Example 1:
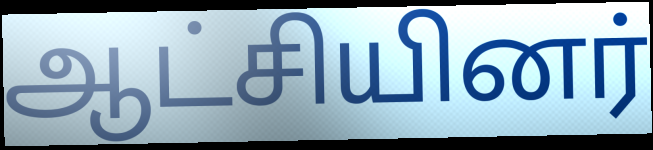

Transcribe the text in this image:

ஆட்சியினர்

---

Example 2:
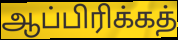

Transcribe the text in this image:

ஆப்பிரிக்கத்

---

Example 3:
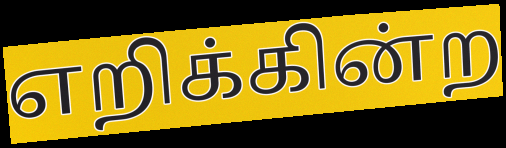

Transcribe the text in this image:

எறிக்கின்ற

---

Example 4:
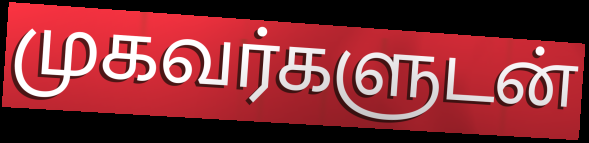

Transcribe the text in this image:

முகவர்களுடன்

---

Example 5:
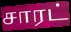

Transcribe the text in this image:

சாரட்